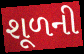
શૂળની